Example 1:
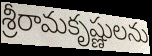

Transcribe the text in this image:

శ్రీరామకృష్ణులను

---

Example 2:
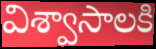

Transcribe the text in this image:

విశ్వాసాలకి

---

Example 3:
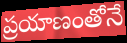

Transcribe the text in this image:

ప్రయాణంతోనే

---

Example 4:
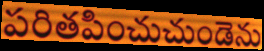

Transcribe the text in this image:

పరితపించుచుండెను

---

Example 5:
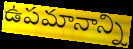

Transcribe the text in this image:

ఉపమానాన్ని